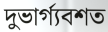
দুভার্গ্যবশত